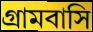
গ্রামবাসি